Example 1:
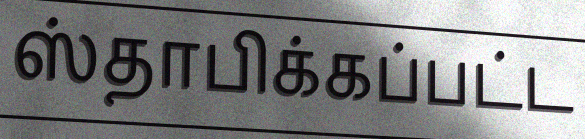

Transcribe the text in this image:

ஸ்தாபிக்கப்பட்ட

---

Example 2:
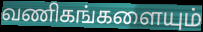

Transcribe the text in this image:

வணிகங்களையும்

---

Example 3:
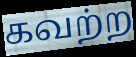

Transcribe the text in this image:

கவற்ற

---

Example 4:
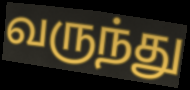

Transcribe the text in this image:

வருந்து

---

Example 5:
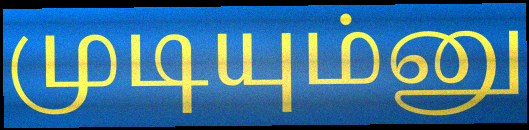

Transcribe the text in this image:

முடியும்னு